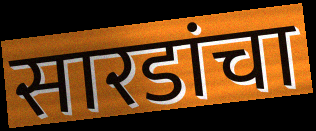
सारडांचा